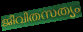
ജീവിതസത്യം